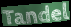
Tandel